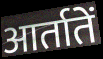
आर्तातें